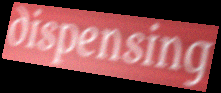
dispensing